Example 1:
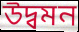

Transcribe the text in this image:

উদ্বমন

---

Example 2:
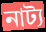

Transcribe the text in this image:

নাট্য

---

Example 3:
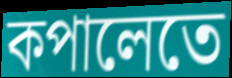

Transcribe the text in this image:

কপালেতে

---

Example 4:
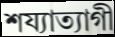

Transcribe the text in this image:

শয্যাত্যাগী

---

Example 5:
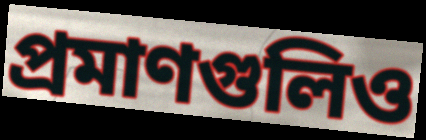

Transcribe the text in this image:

প্রমাণগুলিও